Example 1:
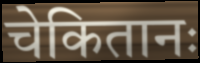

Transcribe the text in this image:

चेकितानः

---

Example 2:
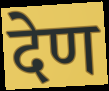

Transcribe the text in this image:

देण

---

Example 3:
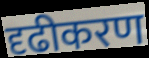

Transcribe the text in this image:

दृढीकरण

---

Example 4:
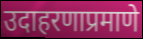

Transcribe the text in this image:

उदाहरणाप्रमाणे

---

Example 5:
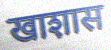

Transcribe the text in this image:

खाशास